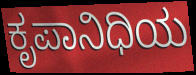
ಕೃಪಾನಿಧಿಯ